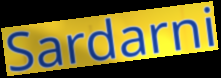
Sardarni